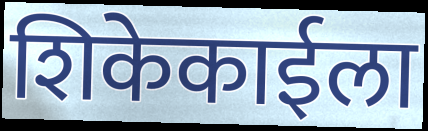
शिकेकाईला